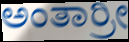
ಅಂತಾರ್ರೀ